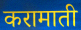
करामाती